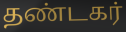
தண்டகர்